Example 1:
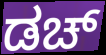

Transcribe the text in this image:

ಡಚ್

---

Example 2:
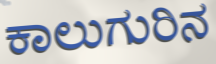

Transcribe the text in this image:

ಕಾಲುಗುರಿನ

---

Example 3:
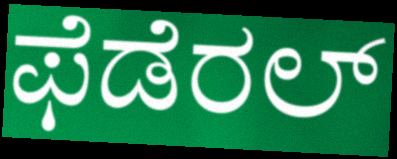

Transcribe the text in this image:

ಫೆಡೆರಲ್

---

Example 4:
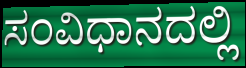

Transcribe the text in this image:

ಸಂವಿಧಾನದಲ್ಲಿ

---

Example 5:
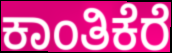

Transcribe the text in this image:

ಕಾಂತಿಕೆರೆ